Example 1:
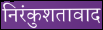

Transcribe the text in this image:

निरंकुशतावाद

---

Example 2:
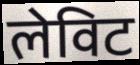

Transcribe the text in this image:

लेविट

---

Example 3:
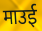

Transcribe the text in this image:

माउई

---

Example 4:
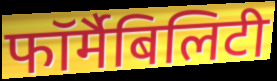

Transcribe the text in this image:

फॉर्मैबिलिटी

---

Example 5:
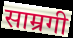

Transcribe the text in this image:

साम्रगी